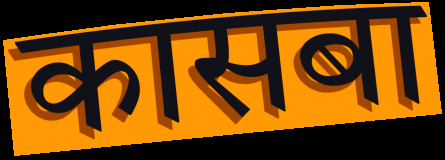
कासबा